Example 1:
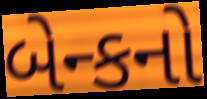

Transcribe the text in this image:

બેન્કનો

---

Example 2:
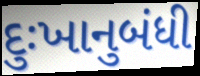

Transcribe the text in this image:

દુઃખાનુબંધી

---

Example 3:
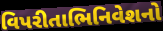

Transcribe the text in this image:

વિપરીતાભિનિવેશનો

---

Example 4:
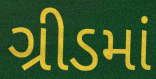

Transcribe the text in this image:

ગ્રીડમાં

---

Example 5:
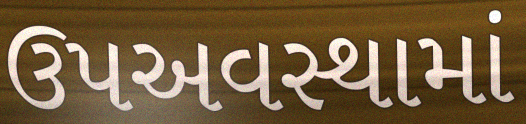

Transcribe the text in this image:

ઉપઅવસ્થામાં